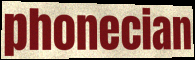
phonecian